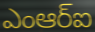
ఎంఆర్ఐ